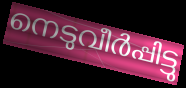
നെടുവീർപ്പിട്ടു